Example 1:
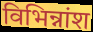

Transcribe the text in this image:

विभिन्नांश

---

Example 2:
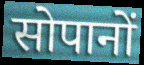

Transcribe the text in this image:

सोपानों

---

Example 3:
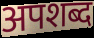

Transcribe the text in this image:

अपशब्द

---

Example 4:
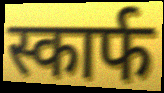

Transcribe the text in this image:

स्कार्फ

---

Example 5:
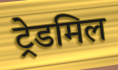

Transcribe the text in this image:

ट्रेडमिल